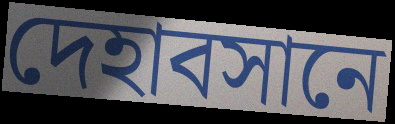
দেহাবসানে